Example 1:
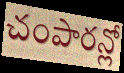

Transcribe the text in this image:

చంపారన్లో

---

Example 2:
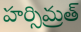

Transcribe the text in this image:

హర్సిమ్రత్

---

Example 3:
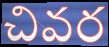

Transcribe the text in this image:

చివర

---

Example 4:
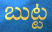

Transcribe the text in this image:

బుట్ట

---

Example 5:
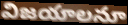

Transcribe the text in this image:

విజయాలనూ